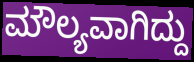
ಮೌಲ್ಯವಾಗಿದ್ದು